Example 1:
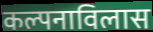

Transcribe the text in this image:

कल्पनाविलास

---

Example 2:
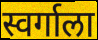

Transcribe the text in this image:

स्वर्गाला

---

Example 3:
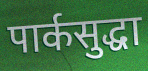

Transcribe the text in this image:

पार्कसुद्धा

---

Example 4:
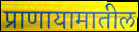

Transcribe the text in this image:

प्राणायामातील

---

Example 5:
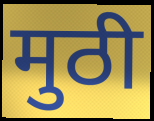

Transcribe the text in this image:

मुठी